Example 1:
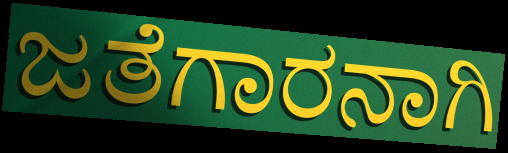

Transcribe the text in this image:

ಜತೆಗಾರನಾಗಿ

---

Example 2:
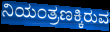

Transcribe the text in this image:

ನಿಯಂತ್ರಣಕ್ಕಿರುವ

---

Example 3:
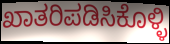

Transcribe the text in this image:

ಖಾತರಿಪಡಿಸಿಕೊಳ್ಳಿ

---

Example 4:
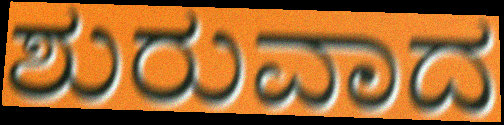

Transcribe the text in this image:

ಶುರುವಾದ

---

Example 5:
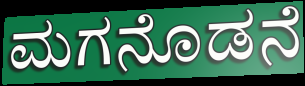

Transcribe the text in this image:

ಮಗನೊಡನೆ